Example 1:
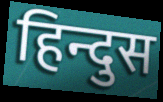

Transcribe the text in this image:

हिन्दुस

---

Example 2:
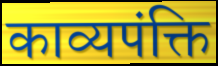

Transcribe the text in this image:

काव्यपंक्ति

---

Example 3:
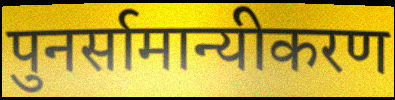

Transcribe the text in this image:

पुनर्सामान्यीकरण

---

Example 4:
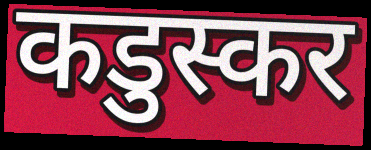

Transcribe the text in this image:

कडुस्कर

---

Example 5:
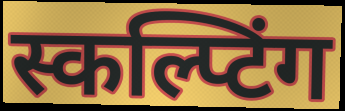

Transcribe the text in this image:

स्कल्प्टिंग